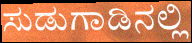
ಸುಡುಗಾಡಿನಲ್ಲಿ